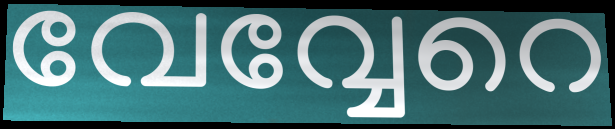
വേവ്വേറെ